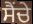
ਸੈਂਚੇ